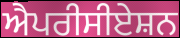
ਐਪਰੀਸੀਏਸ਼ਨ